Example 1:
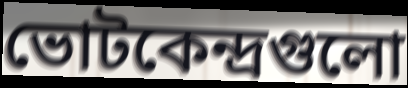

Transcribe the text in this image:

ভোটকেন্দ্রগুলো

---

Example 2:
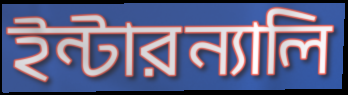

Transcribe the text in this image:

ইন্টারন্যালি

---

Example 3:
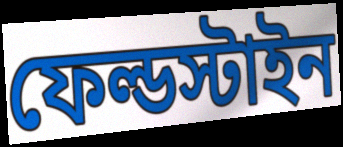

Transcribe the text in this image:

ফেল্ডস্টাইন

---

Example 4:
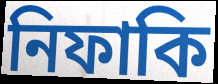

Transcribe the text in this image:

নিফাকি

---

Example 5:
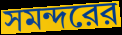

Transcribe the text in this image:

সমন্দরের